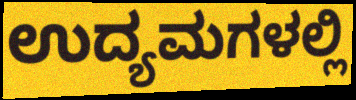
ಉದ್ಯಮಗಳಲ್ಲಿ